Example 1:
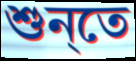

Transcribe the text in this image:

শুন্‌তে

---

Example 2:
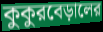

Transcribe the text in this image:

কুকুরবেড়ালের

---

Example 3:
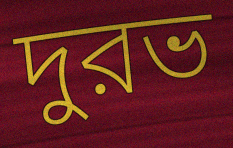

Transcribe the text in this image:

দুরভ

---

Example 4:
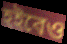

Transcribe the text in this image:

হইবেও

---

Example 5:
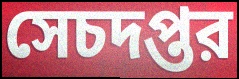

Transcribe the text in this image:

সেচদপ্তর